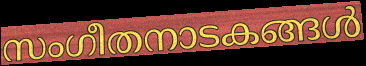
സംഗീതനാടകങ്ങൾ